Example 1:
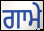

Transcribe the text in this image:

ਗਾਮੇ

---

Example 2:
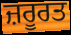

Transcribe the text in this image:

ਜ਼ਰੂਰਤ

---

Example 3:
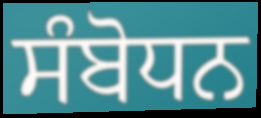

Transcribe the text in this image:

ਸੰਬੋਧਨ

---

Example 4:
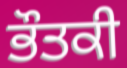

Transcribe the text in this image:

ਭੌਤਕੀ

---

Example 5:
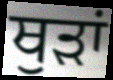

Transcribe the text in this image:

ਥੁੜਾਂ